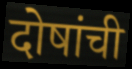
दोषांची